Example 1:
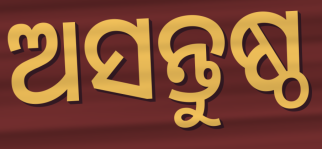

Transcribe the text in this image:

ଅସନ୍ତୁଷ୍ଠ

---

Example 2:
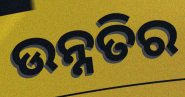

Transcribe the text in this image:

ଉନ୍ନତିର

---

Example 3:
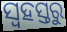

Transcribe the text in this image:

ସ୍ୱହସ୍ତରୁ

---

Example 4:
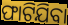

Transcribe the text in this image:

ଫାଟିଯିବା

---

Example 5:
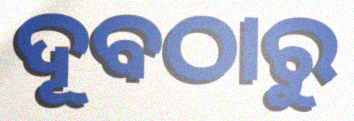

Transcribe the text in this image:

ଦୂବଠାରୁ